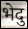
भेदु